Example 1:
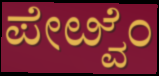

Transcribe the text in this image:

ಪೇೞ್ವೆಂ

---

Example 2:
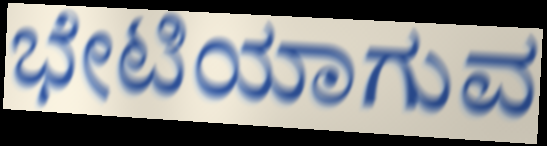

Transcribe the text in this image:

ಭೇಟಿಯಾಗುವ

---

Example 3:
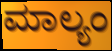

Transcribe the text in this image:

ಮಾಲ್ಯಂ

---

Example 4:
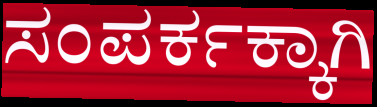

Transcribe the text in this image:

ಸಂಪರ್ಕಕ್ಕಾಗಿ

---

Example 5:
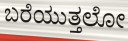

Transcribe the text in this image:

ಬರೆಯುತ್ತಲೋ